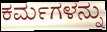
ಕರ್ಮಗಳನ್ನು